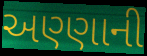
અણ્ણાની